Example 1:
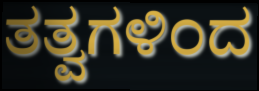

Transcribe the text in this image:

ತತ್ವಗಳಿಂದ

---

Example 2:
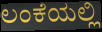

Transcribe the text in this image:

ಲಂಕೆಯಲ್ಲಿ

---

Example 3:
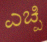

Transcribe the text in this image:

ಎಚ್ಪಿ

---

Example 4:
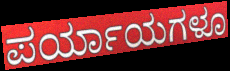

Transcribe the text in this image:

ಪರ್ಯಾಯಗಳೂ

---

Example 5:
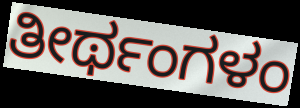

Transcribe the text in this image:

ತೀರ್ಥಂಗಳಂ